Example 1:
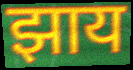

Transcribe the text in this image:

झाय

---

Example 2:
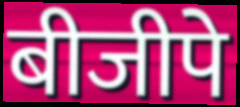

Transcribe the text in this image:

बीजीपे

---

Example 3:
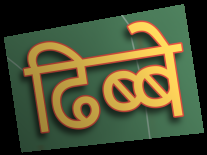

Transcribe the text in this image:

ढिब्बे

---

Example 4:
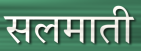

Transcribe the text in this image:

सलमाती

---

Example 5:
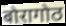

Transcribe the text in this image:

बोरागोठ